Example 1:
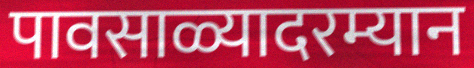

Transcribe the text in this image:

पावसाळ्यादरम्यान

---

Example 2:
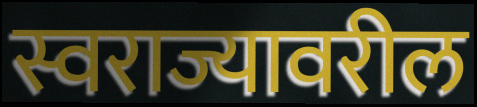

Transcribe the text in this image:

स्वराज्यावरील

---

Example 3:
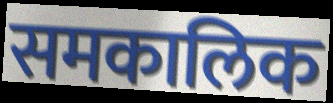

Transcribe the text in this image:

समकालिक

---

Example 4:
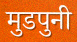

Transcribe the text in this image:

मुडपुनी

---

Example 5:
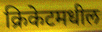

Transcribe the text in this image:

क्रिकेटमधील